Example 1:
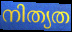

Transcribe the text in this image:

നിത്യത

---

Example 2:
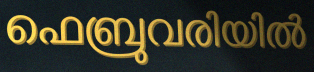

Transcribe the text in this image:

ഫെബ്രുവരിയിൽ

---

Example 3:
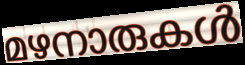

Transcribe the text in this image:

മഴനാരുകൾ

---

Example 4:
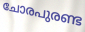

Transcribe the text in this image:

ചോരപുരണ്ട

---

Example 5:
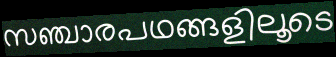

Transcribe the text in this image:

സഞ്ചാരപഥങ്ങളിലൂടെ